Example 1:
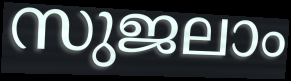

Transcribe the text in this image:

സുജലാം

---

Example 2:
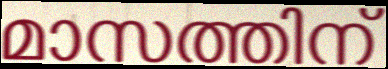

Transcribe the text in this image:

മാസത്തിന്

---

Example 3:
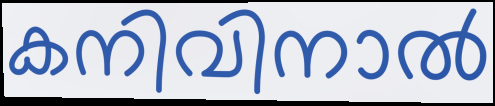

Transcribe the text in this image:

കനിവിനാൽ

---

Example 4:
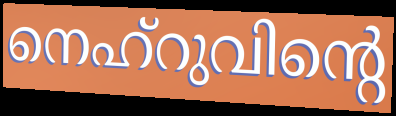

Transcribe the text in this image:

നെഹ്റുവിന്റെ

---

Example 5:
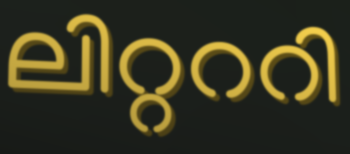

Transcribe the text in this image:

ലിറ്റററി